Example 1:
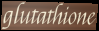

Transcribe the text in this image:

glutathione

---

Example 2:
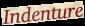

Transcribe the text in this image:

Indenture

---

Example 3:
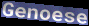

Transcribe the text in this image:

Genoese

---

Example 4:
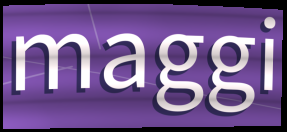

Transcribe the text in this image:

maggi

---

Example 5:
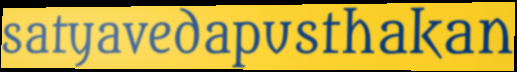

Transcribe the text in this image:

satyavedapusthakan